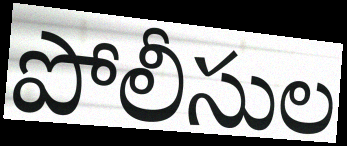
పోలీసుల